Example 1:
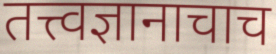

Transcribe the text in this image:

तत्त्वज्ञानाचाच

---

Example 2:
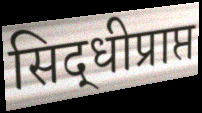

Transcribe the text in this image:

सिद्धीप्राप्त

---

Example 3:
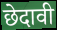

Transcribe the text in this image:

छेदावी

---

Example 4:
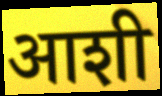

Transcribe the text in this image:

आशी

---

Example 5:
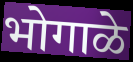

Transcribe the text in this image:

भोगाळे